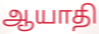
ஆயாதி